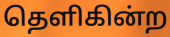
தெளிகின்ற